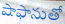
షాఫానుతో